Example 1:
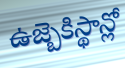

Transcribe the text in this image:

ఉజ్బెకిస్థాన్లో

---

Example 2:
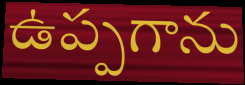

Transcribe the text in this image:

ఉప్పగాను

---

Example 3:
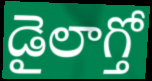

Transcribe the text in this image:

డైలాగ్తో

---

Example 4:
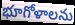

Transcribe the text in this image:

భూగోళాలను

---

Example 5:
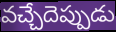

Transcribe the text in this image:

వచ్చేదెప్పుడు